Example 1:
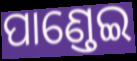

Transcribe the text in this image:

ପାଣ୍ଡେଇ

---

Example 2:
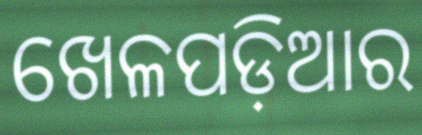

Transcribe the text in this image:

ଖେଳପଡ଼ିଆର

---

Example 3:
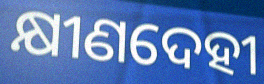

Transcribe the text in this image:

କ୍ଷୀଣଦେହୀ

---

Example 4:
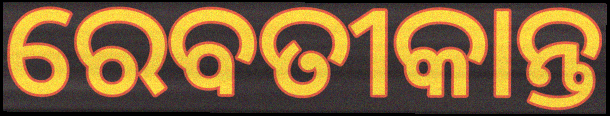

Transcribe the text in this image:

ରେବତୀକାନ୍ତ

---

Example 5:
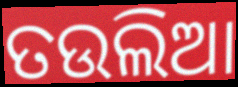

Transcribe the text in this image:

ତଉଲିଆ